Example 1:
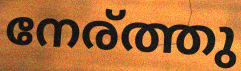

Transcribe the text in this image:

നേര്ത്തു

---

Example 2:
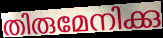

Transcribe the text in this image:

തിരുമേനിക്കു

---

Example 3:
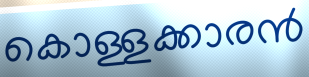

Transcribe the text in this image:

കൊള്ളക്കാരൻ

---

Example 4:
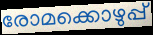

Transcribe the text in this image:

രോമക്കൊഴുപ്പ്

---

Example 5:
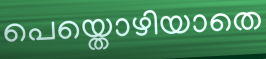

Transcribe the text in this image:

പെയ്തൊഴിയാതെ